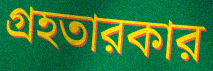
গ্রহতারকার